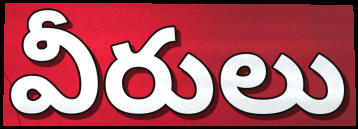
వీరులు